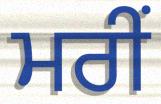
ਮਰੀਂ